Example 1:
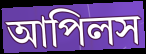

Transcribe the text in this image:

আপিলস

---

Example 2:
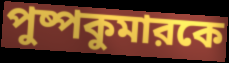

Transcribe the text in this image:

পুষ্পকুমারকে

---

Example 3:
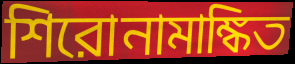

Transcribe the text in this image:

শিরোনামাঙ্কিত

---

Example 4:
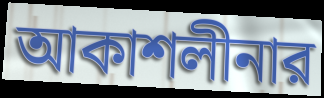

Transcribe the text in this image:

আকাশলীনার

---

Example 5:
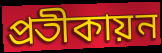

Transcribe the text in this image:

প্রতীকায়ন